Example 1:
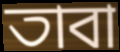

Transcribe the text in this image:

তাবা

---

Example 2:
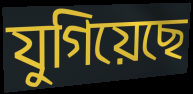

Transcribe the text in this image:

যুগিয়েছে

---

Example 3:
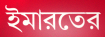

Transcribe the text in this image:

ইমারতের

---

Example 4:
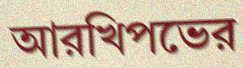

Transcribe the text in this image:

আরখিপভের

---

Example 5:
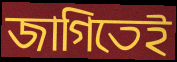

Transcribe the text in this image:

জাগিতেই